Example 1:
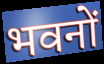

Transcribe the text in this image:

भवनों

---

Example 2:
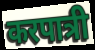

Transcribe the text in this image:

करपात्री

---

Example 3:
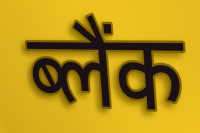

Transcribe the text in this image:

ब्लैंक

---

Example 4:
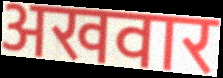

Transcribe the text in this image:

अखवार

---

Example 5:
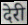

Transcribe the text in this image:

देरी